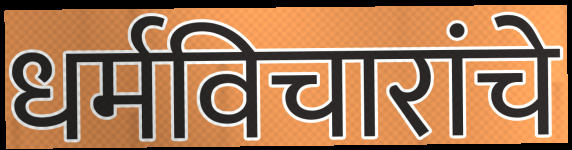
धर्मविचारांचे